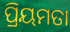
ପ୍ରିୟମତା